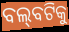
ବଲ୍‌ବଟିକୁ